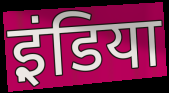
इ़ंडिया